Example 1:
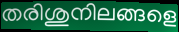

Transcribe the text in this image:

തരിശുനിലങ്ങളെ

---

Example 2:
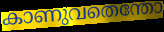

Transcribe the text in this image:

കാണുവതെന്തോ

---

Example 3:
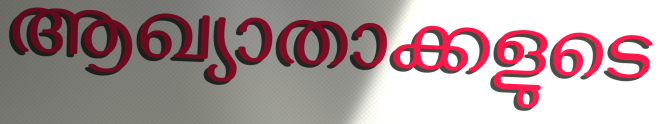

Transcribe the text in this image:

ആഖ്യാതാക്കളുടെ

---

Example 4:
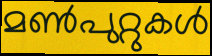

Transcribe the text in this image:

മൺപുറ്റുകൾ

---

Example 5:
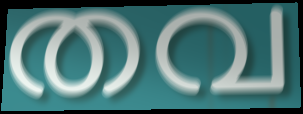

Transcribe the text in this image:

തവ